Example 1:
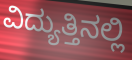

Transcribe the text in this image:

ವಿದ್ಯುತ್ತಿನಲ್ಲಿ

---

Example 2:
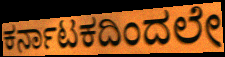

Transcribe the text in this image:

ಕರ್ನಾಟಕದಿಂದಲೇ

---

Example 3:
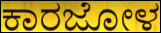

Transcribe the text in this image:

ಕಾರಜೋಳ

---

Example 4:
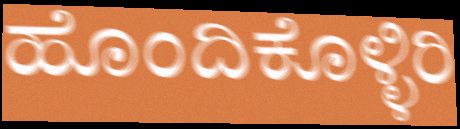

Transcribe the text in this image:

ಹೊಂದಿಕೊಳ್ಳಿರಿ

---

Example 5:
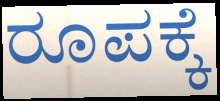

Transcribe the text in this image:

ರೂಪಕ್ಕೆ